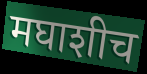
मघाशीच